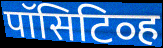
पॉसिटिव्ह